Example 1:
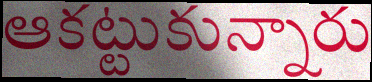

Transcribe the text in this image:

ఆకట్టుకున్నారు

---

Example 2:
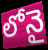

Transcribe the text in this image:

లోనై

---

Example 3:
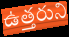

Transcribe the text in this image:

ఉత్తరుని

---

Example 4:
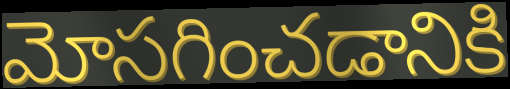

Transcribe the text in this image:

మోసగించడానికి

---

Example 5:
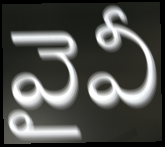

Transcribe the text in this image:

వైవీ